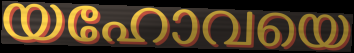
യഹോവയെ